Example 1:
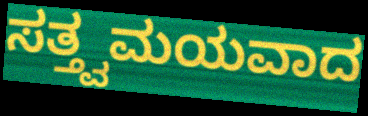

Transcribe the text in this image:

ಸತ್ತ್ವಮಯವಾದ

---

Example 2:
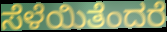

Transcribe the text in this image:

ಸೆಳೆಯಿತೆಂದರೆ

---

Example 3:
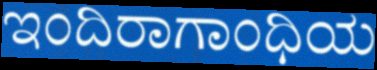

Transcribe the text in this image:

ಇಂದಿರಾಗಾಂಧಿಯ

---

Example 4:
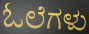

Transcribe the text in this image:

ಓಲೆಗಳು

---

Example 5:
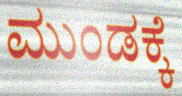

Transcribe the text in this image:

ಮುಂಡಕ್ಕೆ